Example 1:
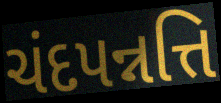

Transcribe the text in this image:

ચંદપન્નત્તિ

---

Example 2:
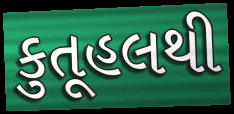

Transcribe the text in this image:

કુતૂહલથી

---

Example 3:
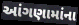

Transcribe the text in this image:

આંગણામાંના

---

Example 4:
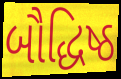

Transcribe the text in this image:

બૌદ્ધિષ્ઠ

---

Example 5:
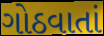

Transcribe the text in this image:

ગોઠવાતાં